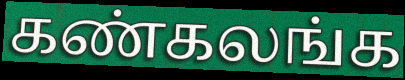
கண்கலங்க